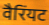
वैरिंयट